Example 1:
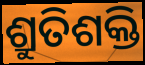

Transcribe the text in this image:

ଶ୍ରୁତିଶକ୍ତି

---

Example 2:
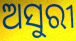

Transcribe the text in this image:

ଅସୁରୀ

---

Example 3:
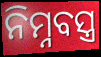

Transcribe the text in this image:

ନିମ୍ନବସ୍ତ୍ର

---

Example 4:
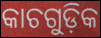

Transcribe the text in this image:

କାଚଗୁଡ଼ିକ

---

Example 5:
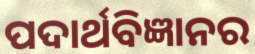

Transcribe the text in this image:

ପଦାର୍ଥବିଜ୍ଞାନର